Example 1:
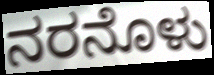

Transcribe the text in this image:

ನರನೊಳು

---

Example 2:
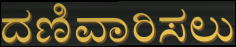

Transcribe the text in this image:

ದಣಿವಾರಿಸಲು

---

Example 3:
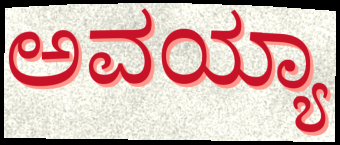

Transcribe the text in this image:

ಅವಯ್ಯಾ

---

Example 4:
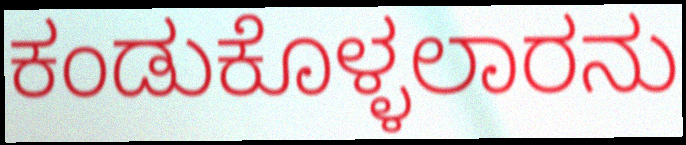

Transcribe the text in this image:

ಕಂಡುಕೊಳ್ಳಲಾರನು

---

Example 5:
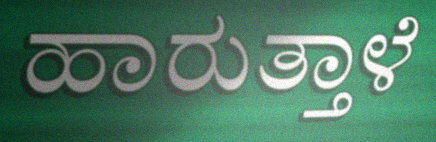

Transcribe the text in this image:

ಹಾರುತ್ತಾಳೆ